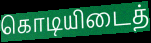
கொடியிடைத்